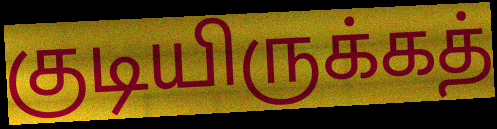
குடியிருக்கத்